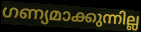
ഗണ്യമാക്കുന്നില്ല